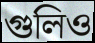
গুলিও